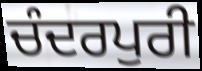
ਚੰਦਰਪੁਰੀ